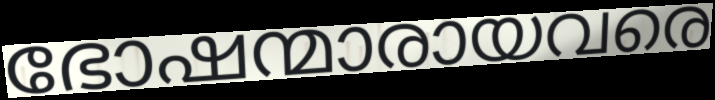
ഭോഷന്മാരായവരെ